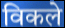
विकले